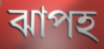
ঝাপহ